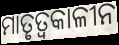
ମାତୃତ୍ୱକାଳୀନ